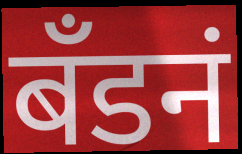
बँडनं